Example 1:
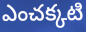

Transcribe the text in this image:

ఎంచక్కటి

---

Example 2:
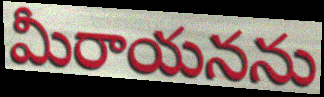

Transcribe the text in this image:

మీరాయనను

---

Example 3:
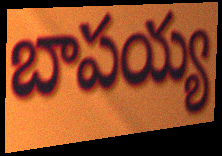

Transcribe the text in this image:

బాపయ్య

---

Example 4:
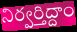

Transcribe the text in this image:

నిర్వర్తిద్దాం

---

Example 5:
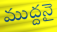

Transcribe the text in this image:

ముద్దనై